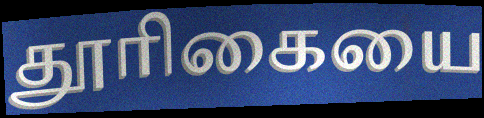
தூரிகையை